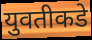
युवतीकडे